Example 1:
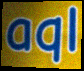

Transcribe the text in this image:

aql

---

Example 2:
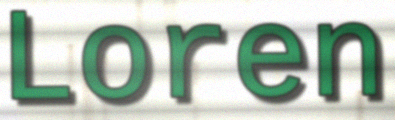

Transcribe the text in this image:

Loren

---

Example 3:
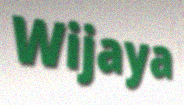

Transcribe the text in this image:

Wijaya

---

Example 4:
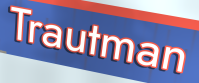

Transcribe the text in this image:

Trautman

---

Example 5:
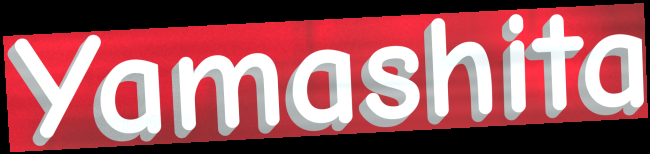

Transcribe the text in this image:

Yamashita